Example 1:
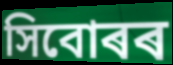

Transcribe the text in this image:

সিবোৰৰ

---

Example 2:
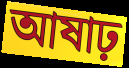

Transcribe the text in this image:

আষাঢ়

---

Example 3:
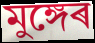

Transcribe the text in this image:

মুঙ্গেৰ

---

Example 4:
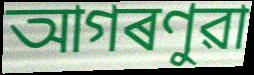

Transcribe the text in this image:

আগৰণুৱা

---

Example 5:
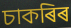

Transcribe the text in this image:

চাকৰিৰ